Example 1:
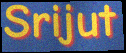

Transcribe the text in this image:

Srijut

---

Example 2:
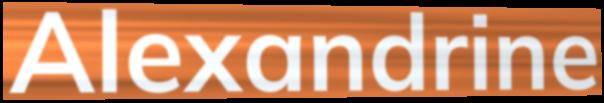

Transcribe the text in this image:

Alexandrine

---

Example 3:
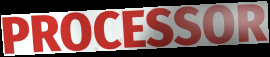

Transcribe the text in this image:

PROCESSOR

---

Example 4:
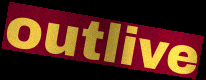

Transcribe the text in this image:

outlive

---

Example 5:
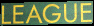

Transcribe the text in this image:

LEAGUE